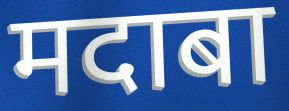
मदाबा